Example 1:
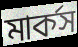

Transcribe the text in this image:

মার্কস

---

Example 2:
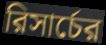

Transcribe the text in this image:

রিসার্চের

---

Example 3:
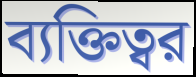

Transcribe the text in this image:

ব্যক্তিত্বর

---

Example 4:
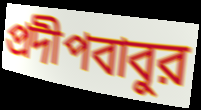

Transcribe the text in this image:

প্রদীপবাবুর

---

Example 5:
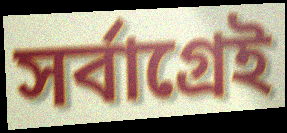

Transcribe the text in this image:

সর্বাগ্রেই